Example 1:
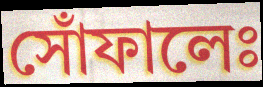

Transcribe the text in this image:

সোঁফালেঃ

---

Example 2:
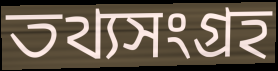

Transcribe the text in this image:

তথ্যসংগ্ৰহ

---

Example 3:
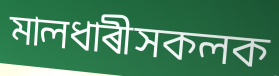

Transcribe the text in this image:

মালধাৰীসকলক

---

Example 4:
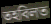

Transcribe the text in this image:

তহবিলত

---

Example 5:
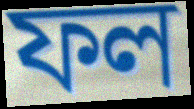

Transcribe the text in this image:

ফল